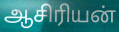
ஆசிரியன்